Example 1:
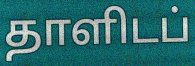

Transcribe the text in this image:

தாளிடப்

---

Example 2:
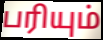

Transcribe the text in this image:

பரியும்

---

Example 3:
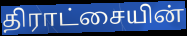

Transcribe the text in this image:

திராட்சையின்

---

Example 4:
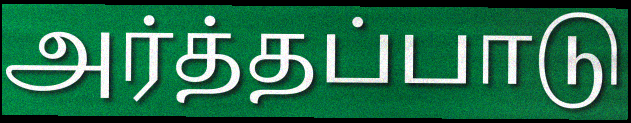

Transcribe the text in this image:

அர்த்தப்பாடு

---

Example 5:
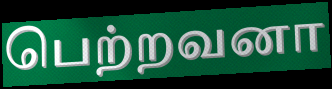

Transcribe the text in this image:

பெற்றவனா